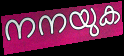
നനയുക